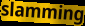
slamming